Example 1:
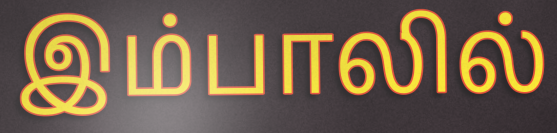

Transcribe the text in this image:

இம்பாலில்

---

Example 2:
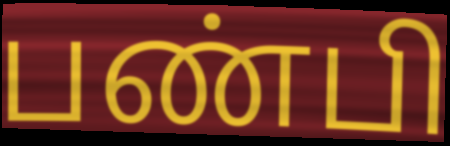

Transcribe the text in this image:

பண்பி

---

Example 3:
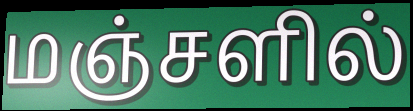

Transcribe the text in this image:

மஞ்சளில்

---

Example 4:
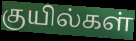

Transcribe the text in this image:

குயில்கள்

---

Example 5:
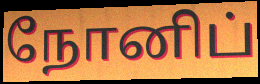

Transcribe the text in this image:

நோனிப்